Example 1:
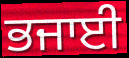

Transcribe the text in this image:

ਭਜਾਈ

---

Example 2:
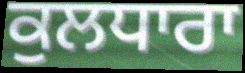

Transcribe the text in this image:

ਕੁਲਧਾਰਾ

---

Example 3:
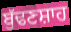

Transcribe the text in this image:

ਬੁੱਢਣਸ਼ਾਹ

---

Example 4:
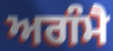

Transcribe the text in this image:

ਅਗੰਮੈ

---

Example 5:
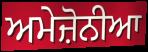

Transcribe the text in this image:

ਅਮੇਜ਼ੋਨੀਆ